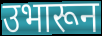
उभारून